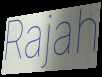
Rajah